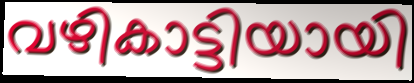
വഴികാട്ടിയായി